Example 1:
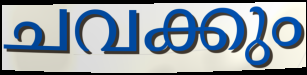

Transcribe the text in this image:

ചവക്കും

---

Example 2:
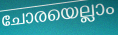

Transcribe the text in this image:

ചോരയെല്ലാം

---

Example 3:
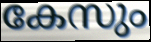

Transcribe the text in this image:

കേസും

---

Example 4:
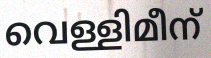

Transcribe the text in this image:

വെള്ളിമീന്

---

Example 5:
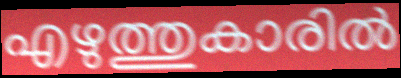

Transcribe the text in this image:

എഴുത്തുകാരിൽ